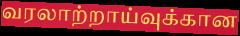
வரலாற்றாய்வுக்கான